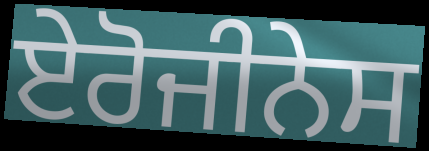
ਏਰੋਜੀਨੇਸ